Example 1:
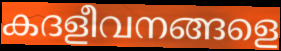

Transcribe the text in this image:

കദളീവനങ്ങളെ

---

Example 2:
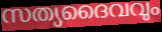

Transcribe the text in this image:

സത്യദൈവവും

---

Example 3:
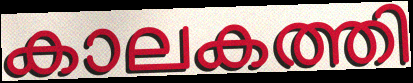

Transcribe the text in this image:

കാലകത്തി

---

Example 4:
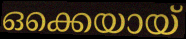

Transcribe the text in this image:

ഒക്കെയായ്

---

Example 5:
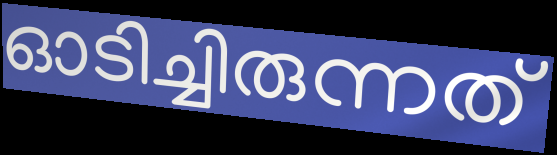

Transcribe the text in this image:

ഓടിച്ചിരുന്നത്